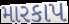
મારકાપ